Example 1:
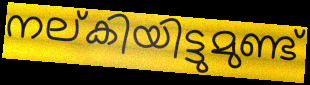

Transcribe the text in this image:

നല്കിയിട്ടുമുണ്ട്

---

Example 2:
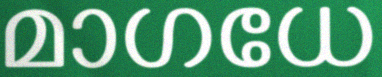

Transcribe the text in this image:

മാഗധേ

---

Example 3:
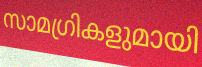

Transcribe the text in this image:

സാമഗ്രികളുമായി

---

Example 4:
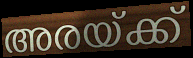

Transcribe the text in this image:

അരയ്‌ക്ക്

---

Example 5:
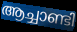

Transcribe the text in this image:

ആച്ചാണ്ടി